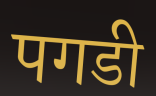
पगडी